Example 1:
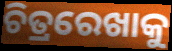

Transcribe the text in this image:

ଚିତ୍ରରେଖାକୁ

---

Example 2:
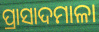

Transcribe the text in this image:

ପ୍ରାସାଦମାଳା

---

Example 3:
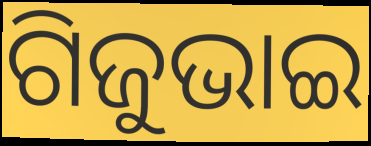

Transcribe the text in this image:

ଗିଜୁଭାଇ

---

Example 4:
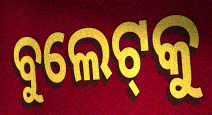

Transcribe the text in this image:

ବୁଲେଟ୍‌କୁ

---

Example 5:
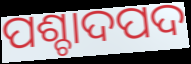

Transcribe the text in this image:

ପଶ୍ଚାଦପଦ